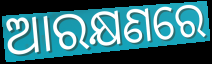
ଆରକ୍ଷଣରେ